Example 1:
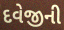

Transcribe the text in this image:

દવેજીની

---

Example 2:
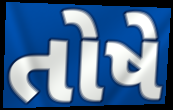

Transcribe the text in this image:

તોષે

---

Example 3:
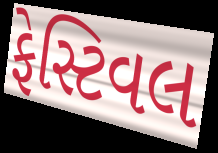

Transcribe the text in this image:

ફેસ્ટિવલ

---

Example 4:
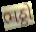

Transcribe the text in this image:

ભઠ્ઠો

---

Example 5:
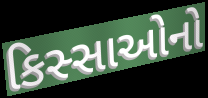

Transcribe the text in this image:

કિસ્સાઓનો